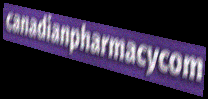
canadianpharmacycom